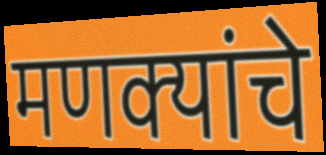
मणक्यांचे